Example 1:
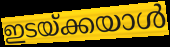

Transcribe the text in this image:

ഇടയ്ക്കയാൾ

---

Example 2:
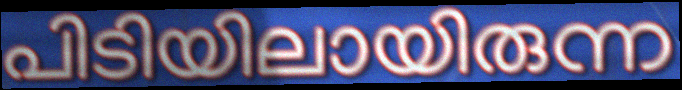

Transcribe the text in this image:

പിടിയിലായിരുന്ന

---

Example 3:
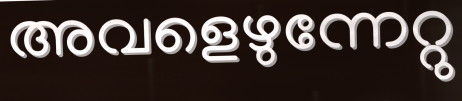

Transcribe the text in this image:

അവളെഴുന്നേറ്റു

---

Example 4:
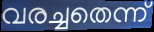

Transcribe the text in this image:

വരച്ചതെന്ന്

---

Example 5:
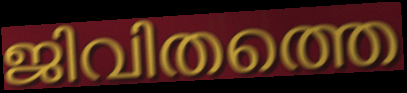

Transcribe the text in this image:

ജിവിതത്തെ